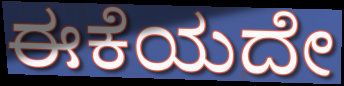
ಈಕೆಯದೇ